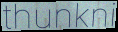
thunkni